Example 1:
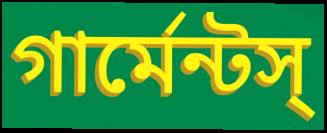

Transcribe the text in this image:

গার্মেন্টস্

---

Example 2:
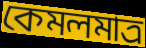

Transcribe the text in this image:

কেমলমাত্র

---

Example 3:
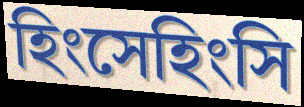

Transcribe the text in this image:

হিংসেহিংসি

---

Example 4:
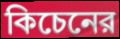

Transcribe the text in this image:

কিচেনের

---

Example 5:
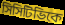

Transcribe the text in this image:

সিসিটিভিকে